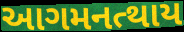
આગમનત્થાય